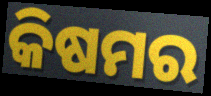
କିଷମର